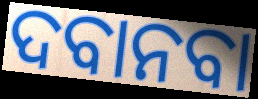
ଦବାନବା